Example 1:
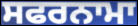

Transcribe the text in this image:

ਸਫਰਨਾਮਾ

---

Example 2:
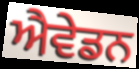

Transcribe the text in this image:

ਐਵੇਡਨ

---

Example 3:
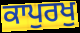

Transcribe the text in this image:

ਕਾਪੁਰਖੁ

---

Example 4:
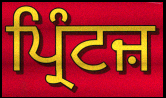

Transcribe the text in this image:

ਪ੍ਰਿੰਟਜ਼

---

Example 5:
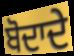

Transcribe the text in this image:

ਬੋਦਾਦੇ